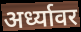
अर्ध्यावर